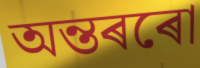
অন্তৰৰো